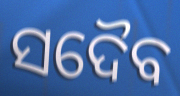
ସଦୈବ